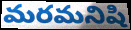
మరమనిషి